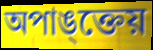
অপাঙ্‌ক্তেয়